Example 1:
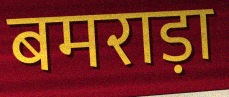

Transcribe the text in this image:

बमराड़ा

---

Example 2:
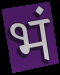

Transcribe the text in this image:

भं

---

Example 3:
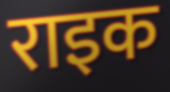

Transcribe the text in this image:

राइक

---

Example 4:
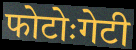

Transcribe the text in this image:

फोटोःगेटी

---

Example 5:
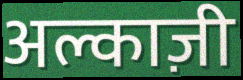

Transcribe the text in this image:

अल्काज़ी